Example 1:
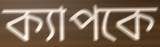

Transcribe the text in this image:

ক্যাপকে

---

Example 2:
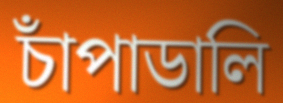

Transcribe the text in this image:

চাঁপাডালি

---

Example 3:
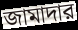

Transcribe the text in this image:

জামাদার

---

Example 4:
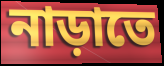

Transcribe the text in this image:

নাড়াতে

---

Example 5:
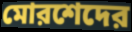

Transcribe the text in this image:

মোরশেদের